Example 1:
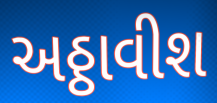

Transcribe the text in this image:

અઠ્ઠાવીશ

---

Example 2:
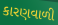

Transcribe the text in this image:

કારણવાળી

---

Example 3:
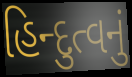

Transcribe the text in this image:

હિન્દુત્વનું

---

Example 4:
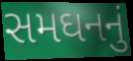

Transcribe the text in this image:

સમઘનનું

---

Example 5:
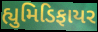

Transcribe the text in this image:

હ્યુમિડિફાયર